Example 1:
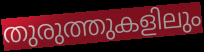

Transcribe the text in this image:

തുരുത്തുകളിലും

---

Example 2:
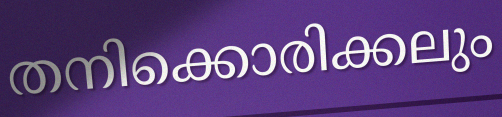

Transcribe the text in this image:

തനിക്കൊരിക്കലും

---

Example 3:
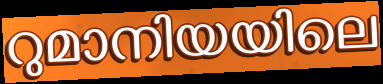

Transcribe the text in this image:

റുമാനിയയിലെ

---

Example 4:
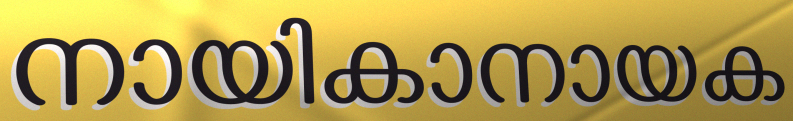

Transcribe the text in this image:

നായികാനായക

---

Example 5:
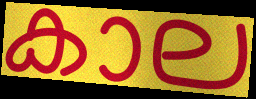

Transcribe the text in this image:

കാല